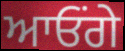
ਆਓਂਗੇ